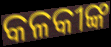
କଳକୀଙ୍କ